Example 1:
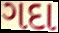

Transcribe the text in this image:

ગદા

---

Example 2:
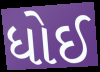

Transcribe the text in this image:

ધોઈ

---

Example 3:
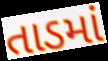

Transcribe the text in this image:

તાડમાં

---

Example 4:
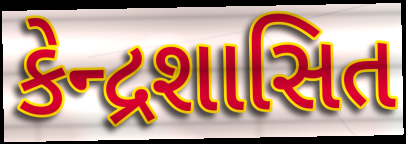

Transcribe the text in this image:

કેન્દ્રશાસિત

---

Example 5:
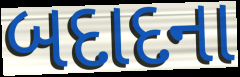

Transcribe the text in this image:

બદાદના